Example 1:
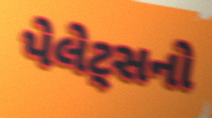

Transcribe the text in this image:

પેલેટ્સનો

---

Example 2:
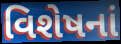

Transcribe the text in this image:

વિશેષનાં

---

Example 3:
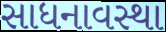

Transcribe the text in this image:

સાધનાવસ્થા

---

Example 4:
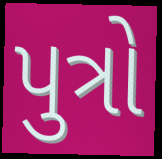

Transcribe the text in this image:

પુત્રો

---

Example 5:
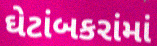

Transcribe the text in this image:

ઘેટાંબકરાંમાં